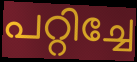
പറ്റിച്ചേ